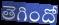
తెగిందో